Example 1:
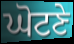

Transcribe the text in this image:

ਘੋਟਣੇ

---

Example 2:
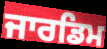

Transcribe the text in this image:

ਜਾਰਡਿਮ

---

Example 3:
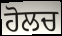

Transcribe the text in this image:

ਹੋਲਚ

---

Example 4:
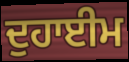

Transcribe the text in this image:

ਦੁਹਾਈਮ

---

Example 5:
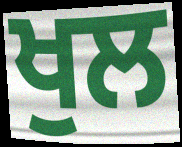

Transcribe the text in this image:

ਖੁਲ